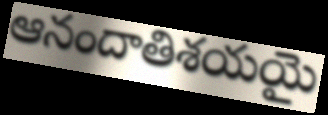
ఆనందాతిశయయై